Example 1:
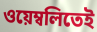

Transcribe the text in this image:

ওয়েম্বলিতেই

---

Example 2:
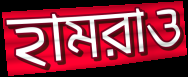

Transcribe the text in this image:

হামরাও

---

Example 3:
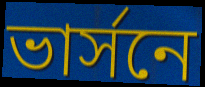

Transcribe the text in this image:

ভার্সনে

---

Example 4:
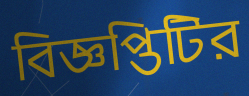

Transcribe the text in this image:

বিজ্ঞপ্তিটির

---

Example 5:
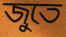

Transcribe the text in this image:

জুতে